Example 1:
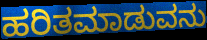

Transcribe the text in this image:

ಹರಿತಮಾಡುವನು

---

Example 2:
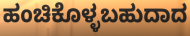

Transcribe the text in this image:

ಹಂಚಿಕೊಳ್ಳಬಹುದಾದ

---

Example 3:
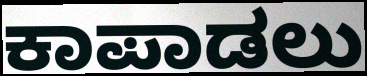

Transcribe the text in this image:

ಕಾಪಾಡಲು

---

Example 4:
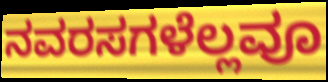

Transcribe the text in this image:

ನವರಸಗಳೆಲ್ಲವೂ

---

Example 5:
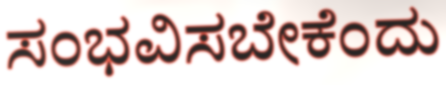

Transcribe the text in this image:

ಸಂಭವಿಸಬೇಕೆಂದು